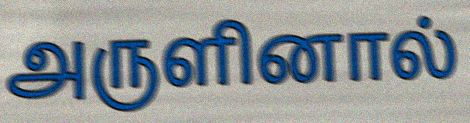
அருளினால்